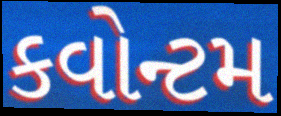
કવોન્ટમ